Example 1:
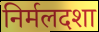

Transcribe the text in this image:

निर्मलदशा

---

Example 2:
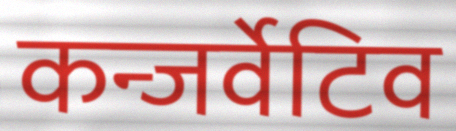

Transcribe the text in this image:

कन्जर्वेटिव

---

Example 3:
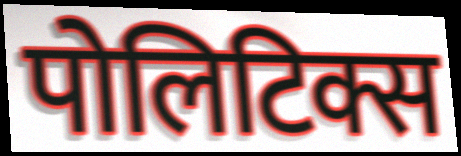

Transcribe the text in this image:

पोलिटिक्स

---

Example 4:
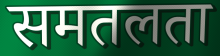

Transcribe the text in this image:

समतलता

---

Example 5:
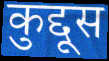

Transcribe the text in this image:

कुद्दूस